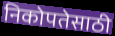
निकोपतेसाठी